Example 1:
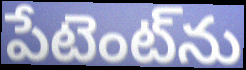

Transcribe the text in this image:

పేటెంట్‌ను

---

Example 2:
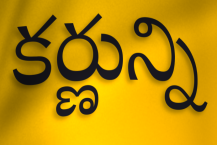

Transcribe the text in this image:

కర్ణున్ని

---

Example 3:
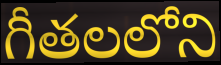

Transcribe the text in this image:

గీతలలోని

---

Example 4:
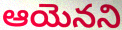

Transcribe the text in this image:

ఆయెనని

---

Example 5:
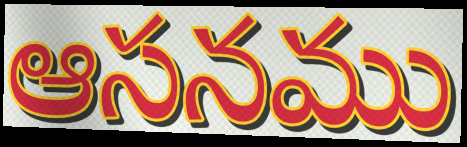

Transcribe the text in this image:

ఆసనము